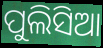
ପୁଲିସିଆ